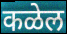
कळेल